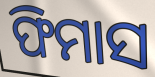
ଫିମାସ